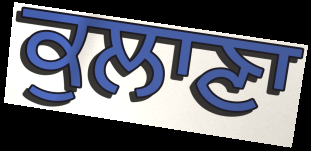
ਕੁਲਾਣਾ